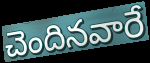
చెందినవారే